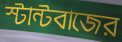
স্টান্টবাজের